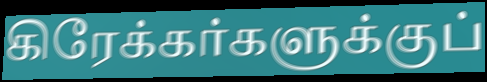
கிரேக்கர்களுக்குப்